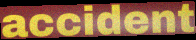
accident